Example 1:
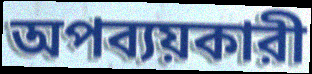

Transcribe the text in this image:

অপব্যয়কারী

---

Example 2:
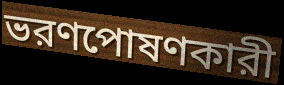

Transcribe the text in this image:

ভরণপোষণকারী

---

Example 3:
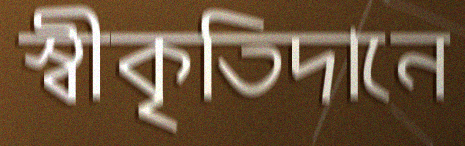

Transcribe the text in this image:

স্বীকৃতিদানে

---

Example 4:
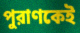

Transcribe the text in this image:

পুরাণকেই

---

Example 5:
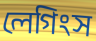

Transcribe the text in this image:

লেগিংস